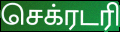
செக்ரடரி